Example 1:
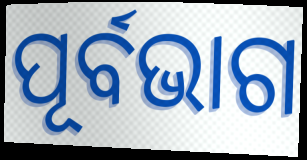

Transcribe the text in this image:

ପୂର୍ବଭାଗ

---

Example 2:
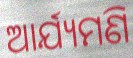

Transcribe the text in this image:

ଆର୍ଯ୍ୟମଣି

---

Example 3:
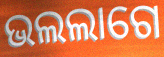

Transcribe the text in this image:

ଭଲଲାଗେ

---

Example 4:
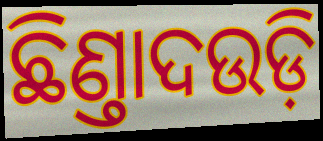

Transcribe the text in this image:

ଛିଣ୍ତାଦଉଡ଼ି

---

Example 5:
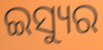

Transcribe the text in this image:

ଇସ୍ୟୁର